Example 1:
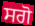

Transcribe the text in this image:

ਸਗੋ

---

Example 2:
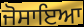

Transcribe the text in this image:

ਜੋਸਾਇਆ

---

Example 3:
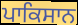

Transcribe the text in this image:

ਪਾਕਿਸਾਨ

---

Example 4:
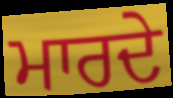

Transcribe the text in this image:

ਮਾਰਦੇ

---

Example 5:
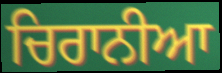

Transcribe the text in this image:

ਚਿਰਾਨੀਆ